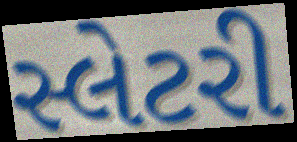
સ્લેટરી